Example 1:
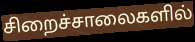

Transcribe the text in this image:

சிறைச்சாலைகளில்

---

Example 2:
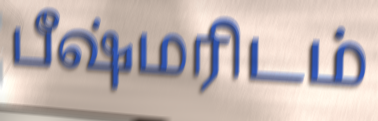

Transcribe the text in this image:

பீஷ்மரிடம்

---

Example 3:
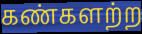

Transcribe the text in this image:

கண்களற்ற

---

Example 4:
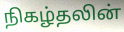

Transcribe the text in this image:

நிகழ்தலின்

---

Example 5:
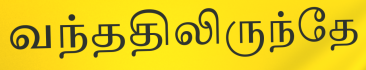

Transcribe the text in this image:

வந்ததிலிருந்தே